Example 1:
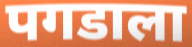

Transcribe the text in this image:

पगडाला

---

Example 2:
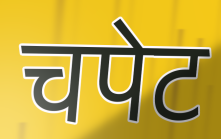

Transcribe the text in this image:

चपेट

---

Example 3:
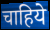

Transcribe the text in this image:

चाहिये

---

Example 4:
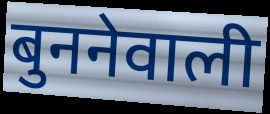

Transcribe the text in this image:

बुननेवाली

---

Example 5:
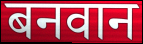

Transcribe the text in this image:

बनवान